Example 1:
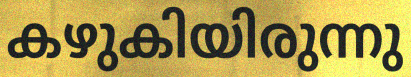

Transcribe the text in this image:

കഴുകിയിരുന്നു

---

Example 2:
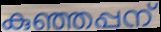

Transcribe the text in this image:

കുഞ്ഞപ്പന്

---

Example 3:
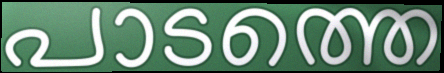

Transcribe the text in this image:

പാടത്തെ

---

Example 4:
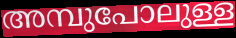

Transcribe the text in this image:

അമ്പുപോലുള്ള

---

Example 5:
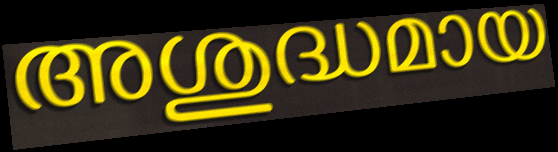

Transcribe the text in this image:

അശുദ്ധമായ